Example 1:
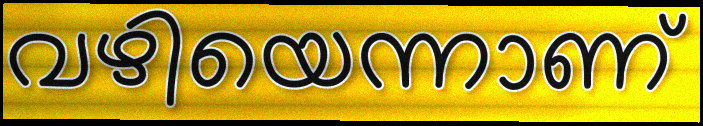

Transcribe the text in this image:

വഴിയെന്നാണ്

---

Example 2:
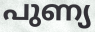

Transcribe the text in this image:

പുണ്യ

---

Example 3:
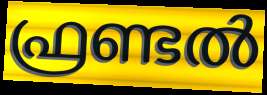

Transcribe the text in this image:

ഫ്രണ്ടൽ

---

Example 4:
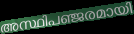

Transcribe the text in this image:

അസ്ഥിപഞ്ജരമായി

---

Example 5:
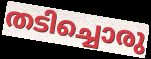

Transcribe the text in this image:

തടിച്ചൊരു